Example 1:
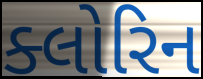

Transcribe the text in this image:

ક્લોરિન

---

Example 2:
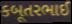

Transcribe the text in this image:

કબૂતરભાઈ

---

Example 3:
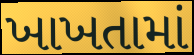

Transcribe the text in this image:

ખાખતામાં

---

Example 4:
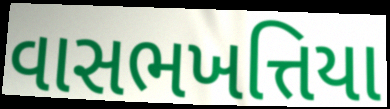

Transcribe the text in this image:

વાસભખત્તિયા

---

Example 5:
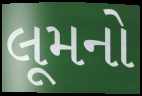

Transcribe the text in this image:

લૂમનો